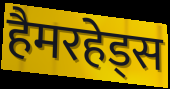
हैमरहेड्स